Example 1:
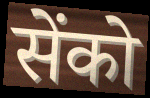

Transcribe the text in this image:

सेंको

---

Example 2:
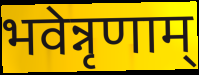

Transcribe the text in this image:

भवेन्नृणाम्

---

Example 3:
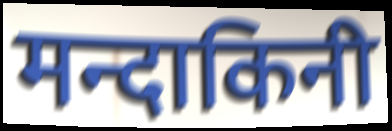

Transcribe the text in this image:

मन्दाकिनी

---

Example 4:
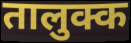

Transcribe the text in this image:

तालुक्क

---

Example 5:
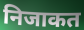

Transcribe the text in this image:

निजाकत